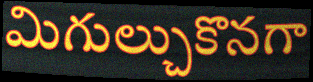
మిగుల్చుకొనగా